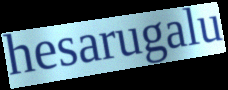
hesarugalu